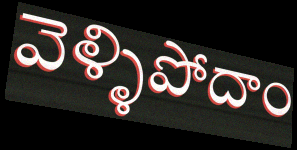
వెళ్ళిపోదాం